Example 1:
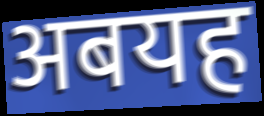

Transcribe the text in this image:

अबयह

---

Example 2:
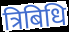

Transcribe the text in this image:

त्रिबिधि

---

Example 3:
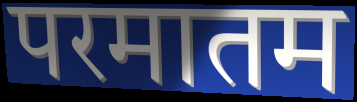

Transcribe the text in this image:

परमातम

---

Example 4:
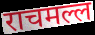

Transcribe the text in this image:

राचमल्ल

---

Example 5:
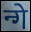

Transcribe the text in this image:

न्गे